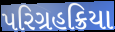
પરિગ્રહક્રિયા